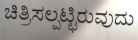
ಚಿತ್ರಿಸಲ್ಪಟ್ಟಿರುವುದು